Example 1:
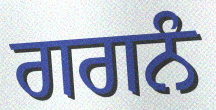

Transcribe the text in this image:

ਗਗਨੰ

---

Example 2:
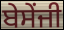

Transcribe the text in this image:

ਬੇਸੇਂਜੀ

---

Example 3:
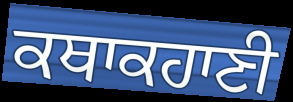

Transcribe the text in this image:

ਕਥਾਕਹਾਣੀ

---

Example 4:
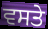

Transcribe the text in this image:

ਵਸਤੇ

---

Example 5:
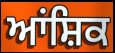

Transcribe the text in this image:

ਆਂਸ਼ਿਕ